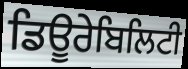
ਡਿਊਰੇਬਿਲਿਟੀ